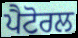
ਪੈਟੋਰਲ